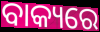
ବାକ୍ୟରେ